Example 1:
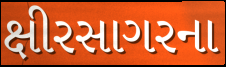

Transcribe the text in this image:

ક્ષીરસાગરના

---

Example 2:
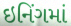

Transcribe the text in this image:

ઇનિંગમાં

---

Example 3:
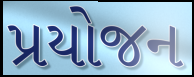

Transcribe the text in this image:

પ્રયોજન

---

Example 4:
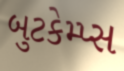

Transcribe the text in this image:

બુટકેમ્પ્સ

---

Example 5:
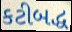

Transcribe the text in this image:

કટીબદ્ધ